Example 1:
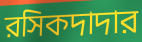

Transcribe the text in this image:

রসিকদাদার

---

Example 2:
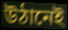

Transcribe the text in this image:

উঠানেই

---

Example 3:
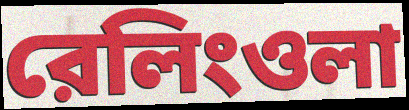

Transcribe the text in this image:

রেলিংওলা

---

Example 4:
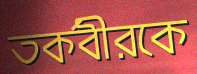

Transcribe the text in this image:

তর্কবীরকে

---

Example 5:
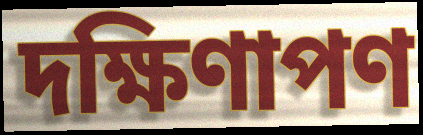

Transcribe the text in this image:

দক্ষিণাপণ